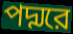
পদ্মরে